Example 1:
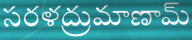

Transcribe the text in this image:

సరళద్రుమాణామ్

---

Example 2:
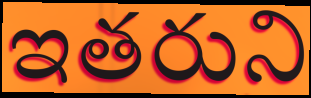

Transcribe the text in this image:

ఇతరుని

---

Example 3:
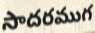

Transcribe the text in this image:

సాదరముగ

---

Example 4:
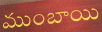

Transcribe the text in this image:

ముంబాయి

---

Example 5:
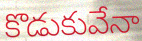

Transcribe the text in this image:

కొడుకువేనా